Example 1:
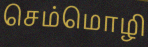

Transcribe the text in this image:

செம்மொழி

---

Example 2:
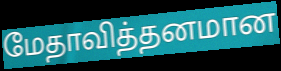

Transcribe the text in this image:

மேதாவித்தனமான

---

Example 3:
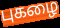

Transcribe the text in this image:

புகழை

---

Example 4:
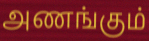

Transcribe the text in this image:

அணங்கும்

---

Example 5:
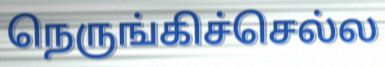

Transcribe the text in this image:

நெருங்கிச்செல்ல